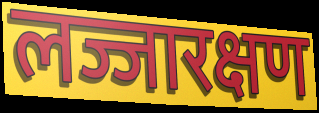
लज्जारक्षण